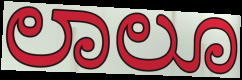
ಲಾಲೂ